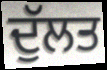
ਦੁੱਲਤ